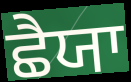
ਛੈਯਾ